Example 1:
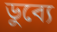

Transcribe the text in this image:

ডুব্যে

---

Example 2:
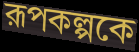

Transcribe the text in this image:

রূপকল্পকে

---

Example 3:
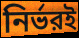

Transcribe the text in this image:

নির্ভরই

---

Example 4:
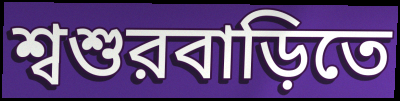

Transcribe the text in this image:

শ্বশুরবাড়িতে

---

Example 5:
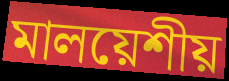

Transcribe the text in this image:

মালয়েশীয়